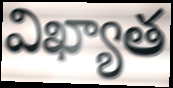
విఖ్యాత